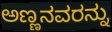
ಅಣ್ಣನವರನ್ನು